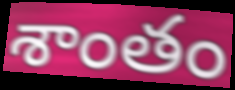
శాంతం